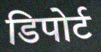
डिपोर्ट